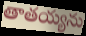
తాతయ్యను